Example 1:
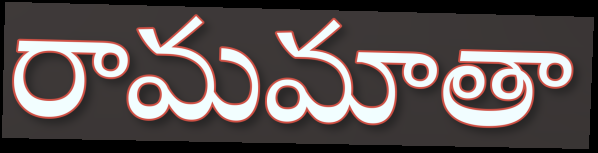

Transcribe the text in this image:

రామమాతా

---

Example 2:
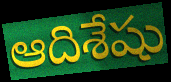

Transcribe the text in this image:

ఆదిశేషు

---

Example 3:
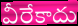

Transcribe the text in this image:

వీరేకాదు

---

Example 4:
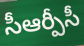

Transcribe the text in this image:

సీఆర్పీసీ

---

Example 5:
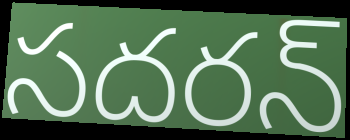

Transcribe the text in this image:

సదరన్